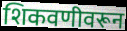
शिकवणीवरून